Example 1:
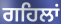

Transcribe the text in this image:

ਗਹਿਲਾਂ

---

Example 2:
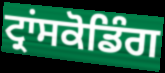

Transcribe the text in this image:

ਟ੍ਰਾਂਸਕੋਡਿੰਗ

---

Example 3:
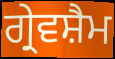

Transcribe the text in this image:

ਗ੍ਰੇਵਸ਼ੈਮ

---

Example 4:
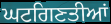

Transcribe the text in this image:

ਘਟਗਿਣਤੀਆਂ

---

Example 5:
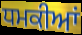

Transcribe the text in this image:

ਧਮਕੀਆਂ